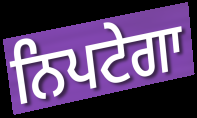
ਨਿਪਟੇਗਾ